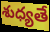
శుధ్యతే